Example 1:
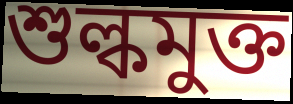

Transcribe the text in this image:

শুল্কমুক্ত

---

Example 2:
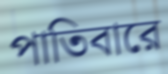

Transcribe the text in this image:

পাতিবারে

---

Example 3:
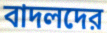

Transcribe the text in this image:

বাদলদের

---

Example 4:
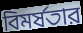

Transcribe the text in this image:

বিমর্ষতার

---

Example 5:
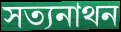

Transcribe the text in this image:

সত্যনাথন